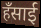
हँसाई